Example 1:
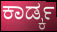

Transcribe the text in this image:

ಕಾರ್ಡ್ಕ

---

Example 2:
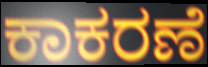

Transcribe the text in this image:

ಕಾಕರಣೆ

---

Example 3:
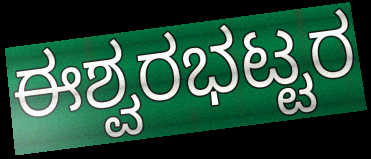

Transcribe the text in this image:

ಈಶ್ವರಭಟ್ಟರ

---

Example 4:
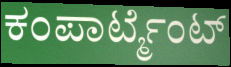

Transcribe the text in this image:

ಕಂಪಾರ್ಟ್ಮೆಂಟ್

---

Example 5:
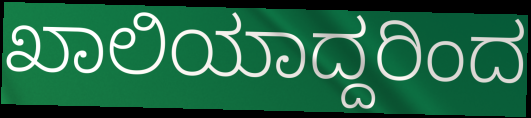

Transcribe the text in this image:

ಖಾಲಿಯಾದ್ದರಿಂದ